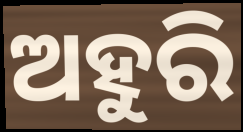
ଅହୁରି